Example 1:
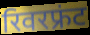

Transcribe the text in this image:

रिवरफ्रंट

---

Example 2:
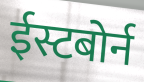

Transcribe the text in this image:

ईस्टबोर्न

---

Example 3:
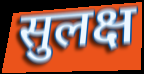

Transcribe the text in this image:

सुलक्ष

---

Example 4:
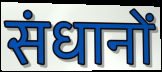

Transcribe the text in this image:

संधानों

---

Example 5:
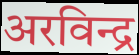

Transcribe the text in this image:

अरविन्द्र